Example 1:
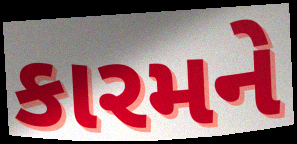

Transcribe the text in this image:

કારમને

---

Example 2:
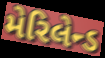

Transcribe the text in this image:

મેરિલેન્ડ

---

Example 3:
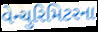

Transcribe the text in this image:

વેન્ચુરિમિટરના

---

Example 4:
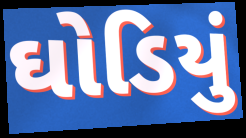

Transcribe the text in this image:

ઘોડિયું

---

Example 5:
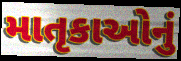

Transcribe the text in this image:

માતૃકાઓનું